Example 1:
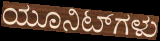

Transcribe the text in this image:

ಯೂನಿಟ್‌ಗಳು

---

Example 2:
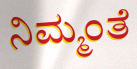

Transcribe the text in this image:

ನಿಮ್ಮಂತೆ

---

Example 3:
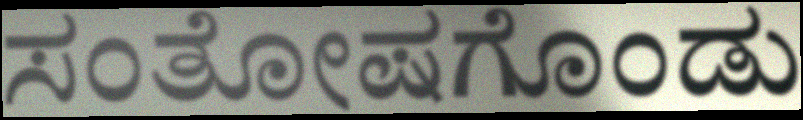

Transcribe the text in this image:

ಸಂತೋಷಗೊಂಡು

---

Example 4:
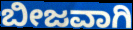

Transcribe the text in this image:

ಬೀಜವಾಗಿ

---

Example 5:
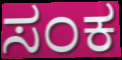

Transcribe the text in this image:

ಸಂಕ